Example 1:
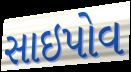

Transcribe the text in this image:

સાઇપોવ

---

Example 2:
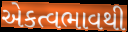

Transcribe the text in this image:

એકત્વભાવથી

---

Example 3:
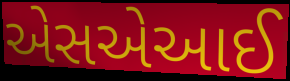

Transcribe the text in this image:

એસએઆઈ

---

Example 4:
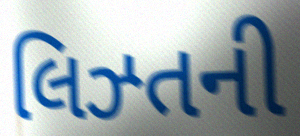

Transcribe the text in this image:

લિઝ્તની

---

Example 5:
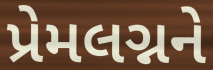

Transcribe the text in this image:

પ્રેમલગ્નને